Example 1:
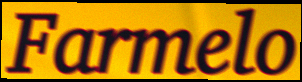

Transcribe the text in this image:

Farmelo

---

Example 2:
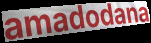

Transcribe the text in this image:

amadodana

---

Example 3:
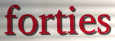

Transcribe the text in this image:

forties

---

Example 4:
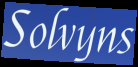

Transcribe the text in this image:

Solvyns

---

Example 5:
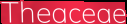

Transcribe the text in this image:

Theaceae